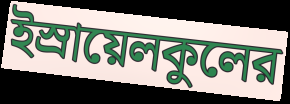
ইস্রায়েলকুলের